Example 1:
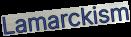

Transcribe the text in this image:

Lamarckism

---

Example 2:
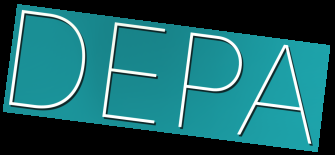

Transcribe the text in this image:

DEPA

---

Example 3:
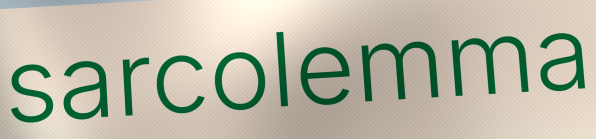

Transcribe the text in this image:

sarcolemma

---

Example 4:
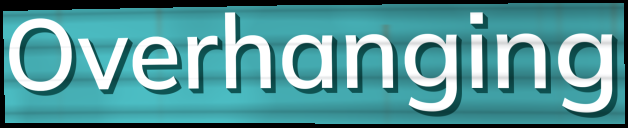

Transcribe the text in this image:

Overhanging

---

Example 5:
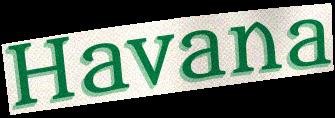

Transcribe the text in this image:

Havana